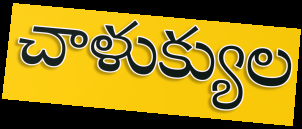
చాళుక్యుల